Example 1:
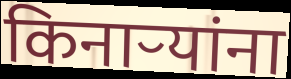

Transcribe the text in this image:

किनाऱ्यांना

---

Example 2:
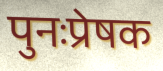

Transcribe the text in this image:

पुनःप्रेषक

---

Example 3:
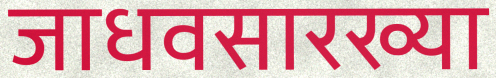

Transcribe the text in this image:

जाधवसारख्या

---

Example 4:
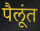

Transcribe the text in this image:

पैलूंत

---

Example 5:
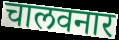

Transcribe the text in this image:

चालवनार